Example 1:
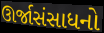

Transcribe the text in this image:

ઊર્જાસંસાધનો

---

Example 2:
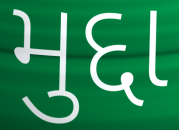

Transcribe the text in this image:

મુદ્દા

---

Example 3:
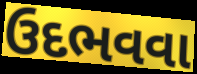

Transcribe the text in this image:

ઉદભવવા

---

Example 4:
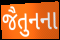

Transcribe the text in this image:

જૈતુનના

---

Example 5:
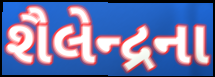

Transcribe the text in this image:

શૈલેન્દ્રના